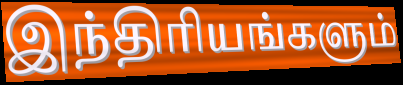
இந்திரியங்களும்